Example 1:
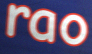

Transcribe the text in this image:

rao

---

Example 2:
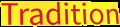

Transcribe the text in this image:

Tradition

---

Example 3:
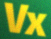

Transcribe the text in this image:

Vx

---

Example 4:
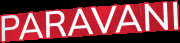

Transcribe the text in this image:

PARAVANI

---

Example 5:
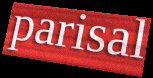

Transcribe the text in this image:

parisal